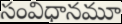
సంవిధానమూ